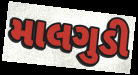
માલગુડી